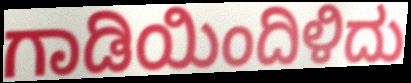
ಗಾಡಿಯಿಂದಿಳಿದು